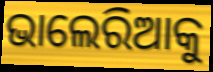
ଭାଲେରିଆକୁ